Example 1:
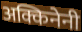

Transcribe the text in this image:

अक्किनेनी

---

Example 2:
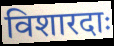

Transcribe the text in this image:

विशारदाः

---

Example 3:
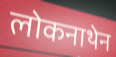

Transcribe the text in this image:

लोकनाथेन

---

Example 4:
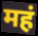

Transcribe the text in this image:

महं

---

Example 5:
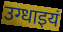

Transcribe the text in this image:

उग्धाइयं